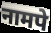
नामपे